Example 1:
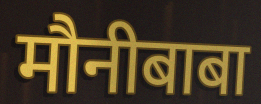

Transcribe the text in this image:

मौनीबाबा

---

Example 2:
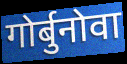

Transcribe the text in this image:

गोर्बुनोवा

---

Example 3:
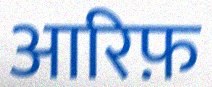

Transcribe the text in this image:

आरिफ़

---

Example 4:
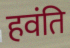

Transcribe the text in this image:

हवंति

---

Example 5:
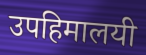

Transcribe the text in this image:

उपहिमालयी